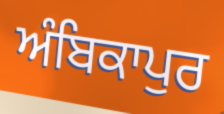
ਅੰਬਿਕਾਪੁਰ